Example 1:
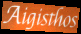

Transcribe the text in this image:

Aigisthos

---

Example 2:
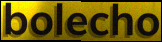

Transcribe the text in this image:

bolecho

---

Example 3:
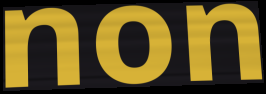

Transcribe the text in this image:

non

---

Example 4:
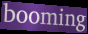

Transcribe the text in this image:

booming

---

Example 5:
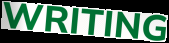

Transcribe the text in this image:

WRITING